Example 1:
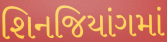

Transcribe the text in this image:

શિનજિયાંગમાં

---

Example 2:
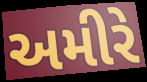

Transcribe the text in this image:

અમીરે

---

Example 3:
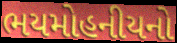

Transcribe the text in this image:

ભયમોહનીયનો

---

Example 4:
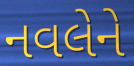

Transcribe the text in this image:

નવલેને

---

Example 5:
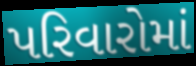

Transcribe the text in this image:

પરિવારોમાં